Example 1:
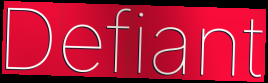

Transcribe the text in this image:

Defiant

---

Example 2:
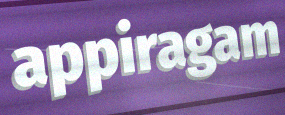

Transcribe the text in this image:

appiragam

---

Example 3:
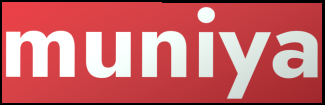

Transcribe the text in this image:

muniya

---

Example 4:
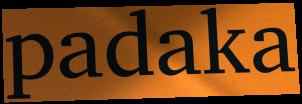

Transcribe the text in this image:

padaka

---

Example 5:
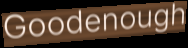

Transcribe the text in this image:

Goodenough